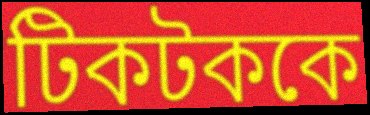
টিকটককে